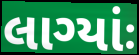
લાગ્યાંઃ